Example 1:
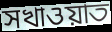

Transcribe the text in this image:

সখাওয়াত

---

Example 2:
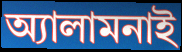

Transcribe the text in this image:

অ্যালামনাই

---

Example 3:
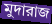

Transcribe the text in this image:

মুদারাজ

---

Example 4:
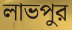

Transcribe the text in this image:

লাভপুর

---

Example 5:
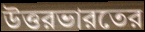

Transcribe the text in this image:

উত্তরভারতের